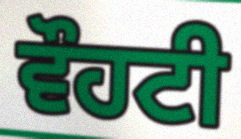
ਵੌਹਟੀ